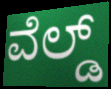
ವೆಲ್ಡ್